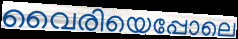
വൈരിയെപ്പോലെ